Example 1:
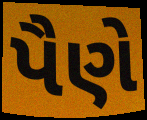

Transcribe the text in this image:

પૈણે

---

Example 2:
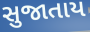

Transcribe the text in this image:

સુજાતાય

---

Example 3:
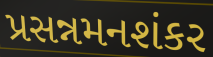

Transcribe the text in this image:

પ્રસન્નમનશંકર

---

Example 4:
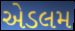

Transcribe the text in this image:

એડલમ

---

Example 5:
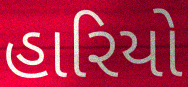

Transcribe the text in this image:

હારિયો